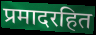
प्रमादरहित